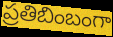
ప్రతిబింబంగా